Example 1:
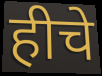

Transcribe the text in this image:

हीचे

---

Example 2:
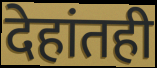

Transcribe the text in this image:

देहांतही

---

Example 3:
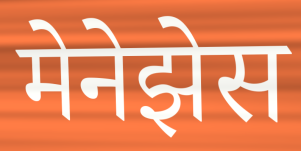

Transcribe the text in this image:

मेनेझेस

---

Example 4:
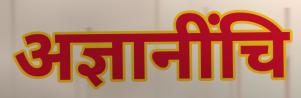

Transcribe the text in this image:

अज्ञानींचि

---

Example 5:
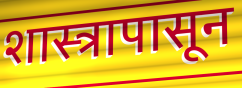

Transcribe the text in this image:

शास्त्रापासून